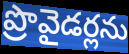
ప్రొవైడర్లను